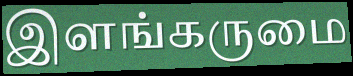
இளங்கருமை